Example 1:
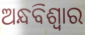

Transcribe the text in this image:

ଅନ୍ଧବିଶ୍ୱାର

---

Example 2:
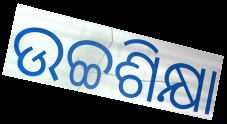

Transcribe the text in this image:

ଉଚ୍ଚଶିକ୍ଷା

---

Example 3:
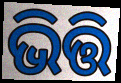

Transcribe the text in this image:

ଭିତ୍ତି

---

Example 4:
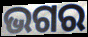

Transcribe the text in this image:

ଭଗର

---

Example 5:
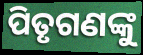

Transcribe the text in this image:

ପିତୃଗଣଙ୍କୁ